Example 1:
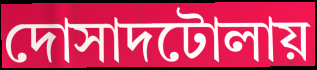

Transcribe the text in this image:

দোসাদটোলায়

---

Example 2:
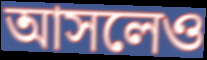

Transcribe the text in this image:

আসলেও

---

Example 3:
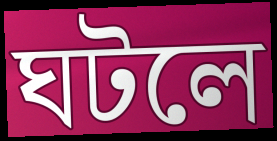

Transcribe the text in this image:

ঘটলে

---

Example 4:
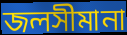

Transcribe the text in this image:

জলসীমানা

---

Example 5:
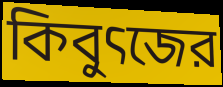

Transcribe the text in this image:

কিবুৎজের